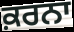
ਕ਼ਰਨਾ